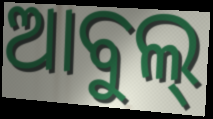
ଆବୁଲ୍